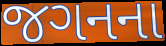
જગનના